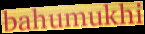
bahumukhi